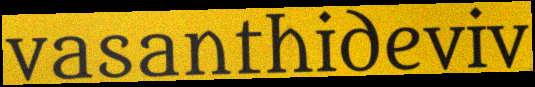
vasanthideviv